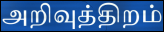
அறிவுத்திறம்